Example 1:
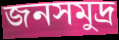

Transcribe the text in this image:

জনসমুদ্র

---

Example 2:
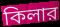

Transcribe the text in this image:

কিলার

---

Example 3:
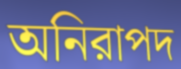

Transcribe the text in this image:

অনিরাপদ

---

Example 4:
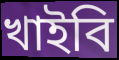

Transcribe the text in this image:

খাইবি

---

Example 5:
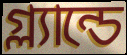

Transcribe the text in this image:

গ্ল্যান্ডে